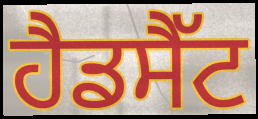
ਹੈਡਸੈੱਟ